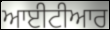
ਆਈਟੀਆਰ